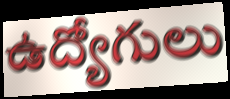
ఉద్యోగులు